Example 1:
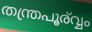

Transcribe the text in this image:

തന്ത്രപൂര്വ്വം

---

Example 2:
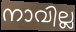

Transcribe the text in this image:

നാവില്ല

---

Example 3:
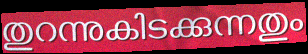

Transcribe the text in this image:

തുറന്നുകിടക്കുന്നതും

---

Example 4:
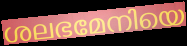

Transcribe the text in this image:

ശലഭമേനിയെ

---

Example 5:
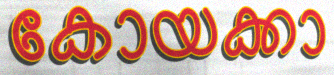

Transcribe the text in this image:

കോയക്കാ